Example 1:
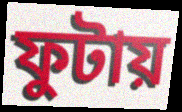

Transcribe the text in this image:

ফুটায়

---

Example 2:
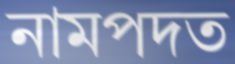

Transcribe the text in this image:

নামপদত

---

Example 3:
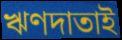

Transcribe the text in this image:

ঋণদাতাই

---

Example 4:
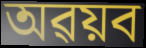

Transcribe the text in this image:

অৱয়ব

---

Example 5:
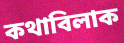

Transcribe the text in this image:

কথাবিলাক